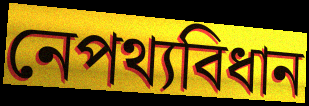
নেপথ্যবিধান